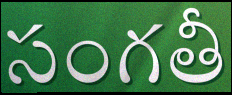
సంగతీ